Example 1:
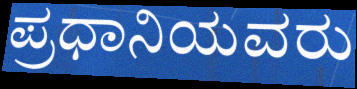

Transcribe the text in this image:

ಪ್ರಧಾನಿಯವರು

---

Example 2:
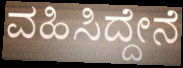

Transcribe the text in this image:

ವಹಿಸಿದ್ದೇನೆ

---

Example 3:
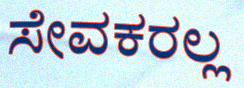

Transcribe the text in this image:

ಸೇವಕರಲ್ಲ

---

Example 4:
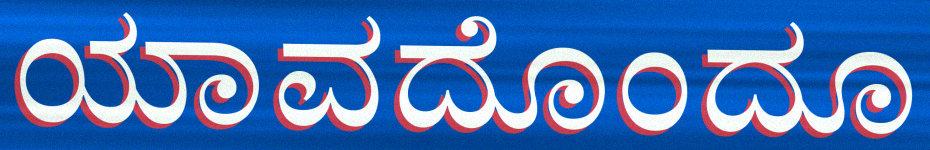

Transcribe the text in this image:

ಯಾವದೊಂದೂ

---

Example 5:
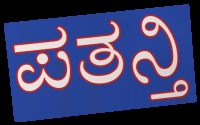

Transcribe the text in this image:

ಪತನ್ತಿ